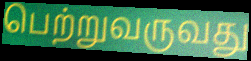
பெற்றுவருவது